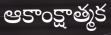
ఆకాంక్షాత్మక